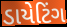
ડાયેટિંગ